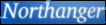
Northanger